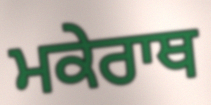
ਮਕੇਰਾਥ